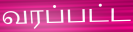
வரப்பட்ட